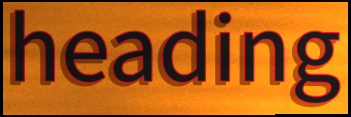
heading